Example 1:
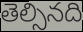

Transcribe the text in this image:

తెల్సినది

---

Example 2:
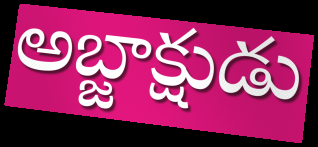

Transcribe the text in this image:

అబ్జాక్షుడు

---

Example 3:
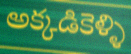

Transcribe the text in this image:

అక్కడికెళ్ళి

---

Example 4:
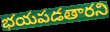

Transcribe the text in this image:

భయపడతారని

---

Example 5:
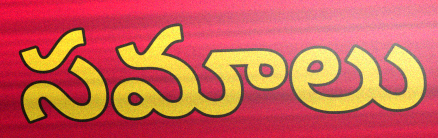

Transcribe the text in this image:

సమాలు